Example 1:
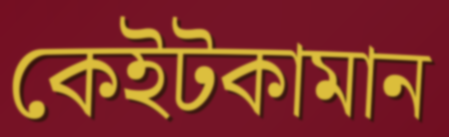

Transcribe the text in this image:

কেইটকামান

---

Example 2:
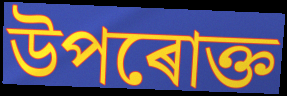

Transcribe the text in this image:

উপৰোক্ত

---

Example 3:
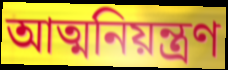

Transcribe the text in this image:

আত্মনিয়ন্ত্ৰণ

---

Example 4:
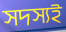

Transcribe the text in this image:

সদস্যই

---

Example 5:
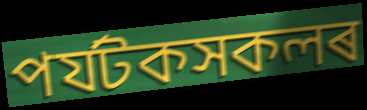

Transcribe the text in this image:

পৰ্যটকসকলৰ